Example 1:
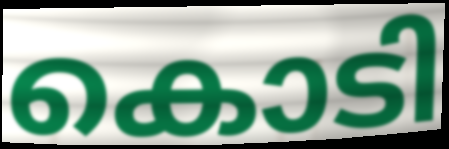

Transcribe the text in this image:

കൊടി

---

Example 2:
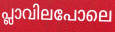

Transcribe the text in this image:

പ്ലാവിലപോലെ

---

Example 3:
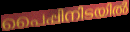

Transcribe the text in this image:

പൈപ്പിനിടയിൽ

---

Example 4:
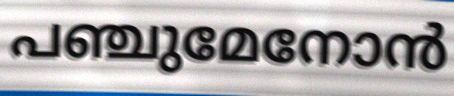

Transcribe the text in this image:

പഞ്ചുമേനോൻ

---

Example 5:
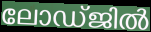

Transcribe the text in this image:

ലോഡ്ജിൽ